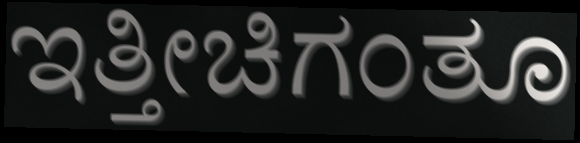
ಇತ್ತೀಚಿಗಂತೂ